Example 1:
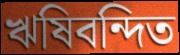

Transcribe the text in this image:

ঋষিবন্দিত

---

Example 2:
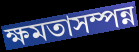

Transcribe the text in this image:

ক্ষমতাসম্পন্ন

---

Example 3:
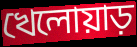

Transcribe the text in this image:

খেলোয়াড়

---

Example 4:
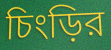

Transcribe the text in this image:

চিংড়ির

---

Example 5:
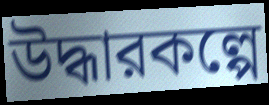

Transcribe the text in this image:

উদ্ধারকল্পে